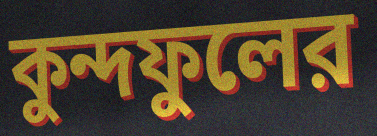
কুন্দফুলের